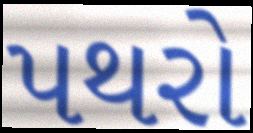
પથરો